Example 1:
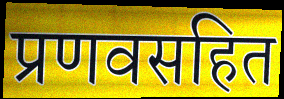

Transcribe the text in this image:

प्रणवसहित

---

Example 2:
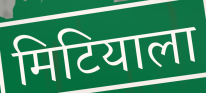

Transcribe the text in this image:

मिटियाला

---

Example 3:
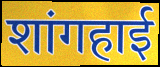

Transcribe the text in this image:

शांगहाई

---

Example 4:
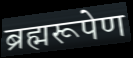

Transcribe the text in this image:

ब्रह्मरूपेण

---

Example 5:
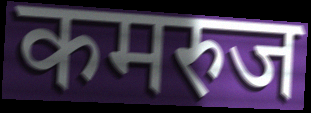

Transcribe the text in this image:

कमरुज